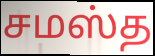
சமஸ்த